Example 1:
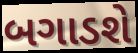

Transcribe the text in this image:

બગાડશે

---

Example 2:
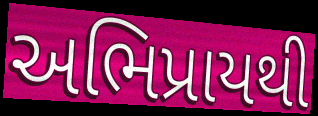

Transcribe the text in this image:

અભિપ્રાયથી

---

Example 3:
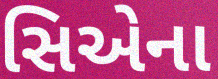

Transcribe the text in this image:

સિએના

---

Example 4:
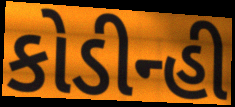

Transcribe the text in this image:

કોડીન્હી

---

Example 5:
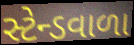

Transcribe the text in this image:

સ્ટેન્ડવાળા